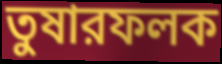
তুষারফলক